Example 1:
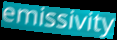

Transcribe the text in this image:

emissivity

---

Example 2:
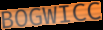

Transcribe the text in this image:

BOGWICC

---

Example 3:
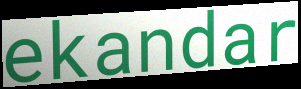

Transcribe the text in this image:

ekandar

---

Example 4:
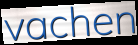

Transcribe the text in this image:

vachen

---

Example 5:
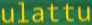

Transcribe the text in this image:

ulattu